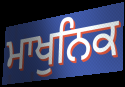
ਮਾਖੁਨਿਕ